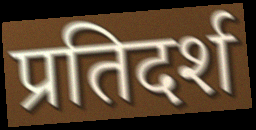
प्रतिदर्श